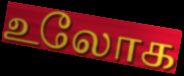
உலோக